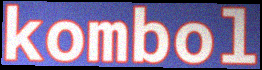
kombol